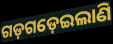
ଗଡ଼ଗଡ଼େଇଲାଣି